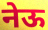
नेऊ